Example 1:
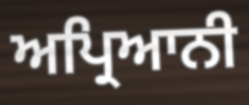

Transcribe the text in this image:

ਅਪ੍ਰਿਆਨੀ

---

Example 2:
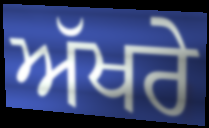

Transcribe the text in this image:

ਅੱਖਰੇ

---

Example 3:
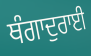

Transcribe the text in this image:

ਥੰਗਾਦੁਰਾਈ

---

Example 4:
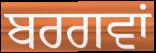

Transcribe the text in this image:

ਬਰਗਵਾਂ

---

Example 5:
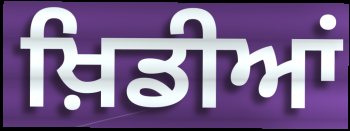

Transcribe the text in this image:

ਖ਼ਿਡੀਆਂ